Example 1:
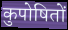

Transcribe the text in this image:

कुपोषितों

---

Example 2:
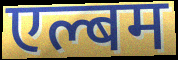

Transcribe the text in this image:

एल्बम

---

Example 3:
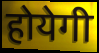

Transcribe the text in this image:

होयेगी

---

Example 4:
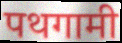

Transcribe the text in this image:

पथगामी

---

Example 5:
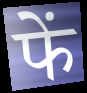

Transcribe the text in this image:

फें